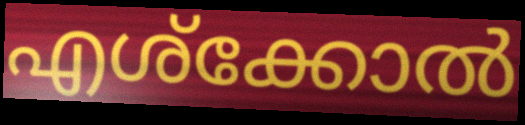
എശ്ക്കോൽ